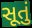
સૂતું